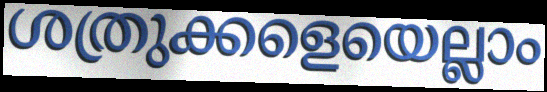
ശത്രുക്കളെയെല്ലാം